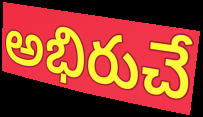
అభిరుచే